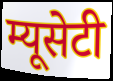
म्यूसेटी